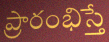
ప్రారంభిస్తే